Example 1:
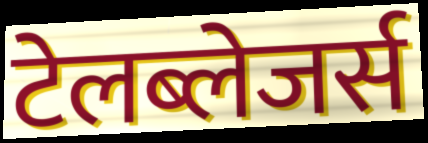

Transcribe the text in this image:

टेलब्लेजर्स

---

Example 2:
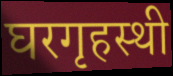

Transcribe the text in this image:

घरगृहस्थी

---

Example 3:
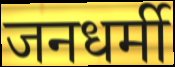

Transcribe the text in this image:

जनधर्मी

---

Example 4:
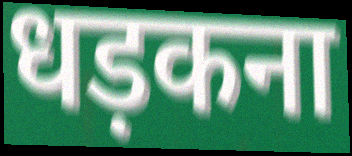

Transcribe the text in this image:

धड़कना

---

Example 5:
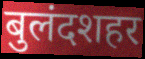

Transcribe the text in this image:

बुलंदशहर